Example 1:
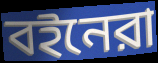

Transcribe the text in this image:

বইনেরা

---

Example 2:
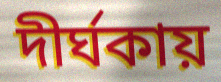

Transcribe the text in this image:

দীর্ঘকায়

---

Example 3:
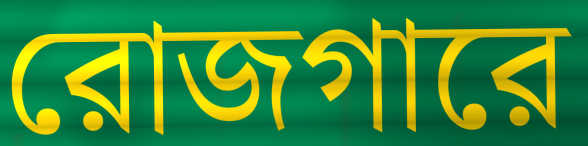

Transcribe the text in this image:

রোজগারে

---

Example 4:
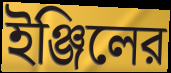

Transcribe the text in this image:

ইঞ্জিলের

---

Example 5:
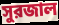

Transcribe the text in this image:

সুরজাল